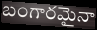
బంగారమైనా